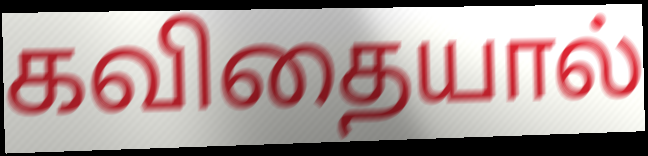
கவிதையால்